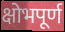
क्षोभपूर्ण